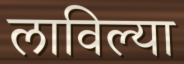
लाविल्या